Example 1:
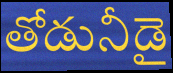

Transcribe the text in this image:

తోడునీడై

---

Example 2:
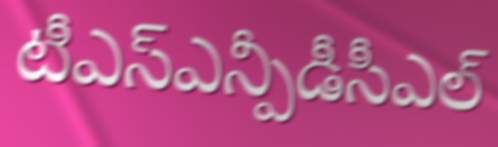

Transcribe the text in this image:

టీఎస్ఎన్పీడీసీఎల్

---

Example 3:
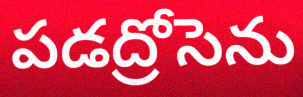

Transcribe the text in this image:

పడద్రోసెను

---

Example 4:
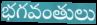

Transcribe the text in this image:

భగవంతులు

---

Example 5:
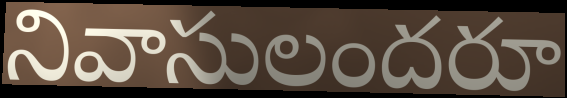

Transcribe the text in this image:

నివాసులందరూ